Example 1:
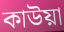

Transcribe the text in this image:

কাউয়া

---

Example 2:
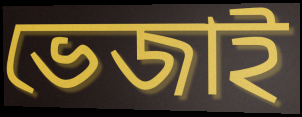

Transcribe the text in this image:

ভেজাই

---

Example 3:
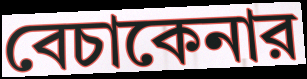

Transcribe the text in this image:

বেচাকেনার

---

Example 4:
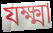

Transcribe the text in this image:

যক্ষ্মা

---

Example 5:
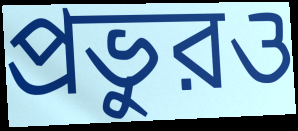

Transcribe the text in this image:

প্রভুরও